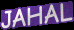
JAHAL